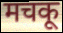
मचकू